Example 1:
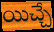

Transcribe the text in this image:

యిచ్చే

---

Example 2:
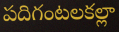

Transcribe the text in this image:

పదిగంటలకల్లా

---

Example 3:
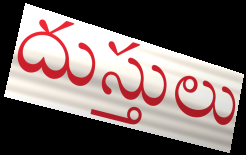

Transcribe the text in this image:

దుస్తులు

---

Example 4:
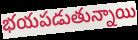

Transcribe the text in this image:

భయపడుతున్నాయి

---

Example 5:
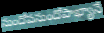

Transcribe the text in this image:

సుందోపసుందోపాఖ్యానే